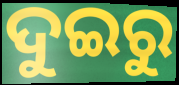
ଦୁଇରୁ